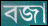
বজা